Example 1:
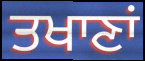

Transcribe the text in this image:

ਤਖਾਣਾਂ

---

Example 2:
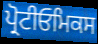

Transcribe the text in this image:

ਪ੍ਰੋਟੀਓਮਿਕਸ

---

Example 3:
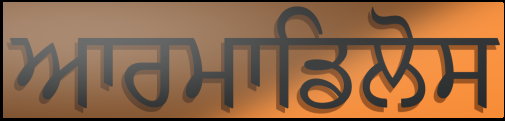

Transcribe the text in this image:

ਆਰਮਾਡਿਲੋਸ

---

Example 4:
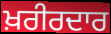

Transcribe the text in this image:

ਖ਼ਰੀਰਦਾਰ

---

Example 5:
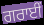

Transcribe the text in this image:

ਗਰਾਈਂ